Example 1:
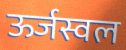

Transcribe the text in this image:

ऊर्जस्वल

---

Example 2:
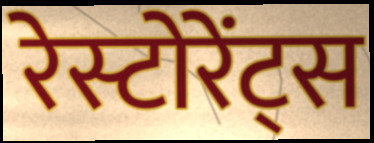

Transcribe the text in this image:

रेस्‍टोरेंट्स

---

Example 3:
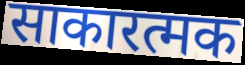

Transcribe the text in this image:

साकारत्मक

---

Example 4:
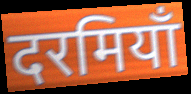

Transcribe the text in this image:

दरमियाँ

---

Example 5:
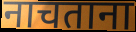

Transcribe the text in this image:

नाचताना